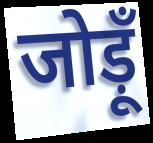
जोड़ूँ